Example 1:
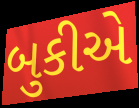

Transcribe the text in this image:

બુકીએ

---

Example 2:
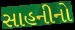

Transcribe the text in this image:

સાહનીનો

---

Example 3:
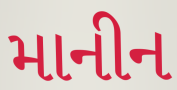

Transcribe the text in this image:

માનીન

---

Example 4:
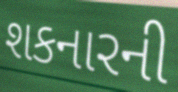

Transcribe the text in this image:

શકનારની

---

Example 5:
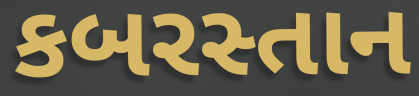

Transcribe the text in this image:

કબરસ્તાન